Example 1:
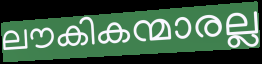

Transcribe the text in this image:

ലൗകികന്മാരല്ല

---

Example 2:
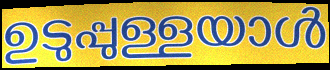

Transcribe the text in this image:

ഉടുപ്പുള്ളയാൾ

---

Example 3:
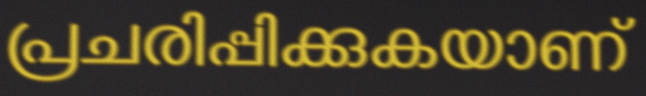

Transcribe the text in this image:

പ്രചരിപ്പിക്കുകയാണ്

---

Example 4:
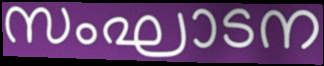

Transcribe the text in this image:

സംഘാടന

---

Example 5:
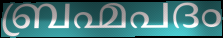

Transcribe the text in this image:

ബ്രഹ്മപദം